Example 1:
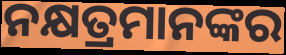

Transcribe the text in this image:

ନକ୍ଷତ୍ରମାନଙ୍କର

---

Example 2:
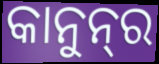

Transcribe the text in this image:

କାନୁନ୍‌ର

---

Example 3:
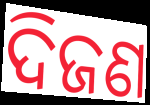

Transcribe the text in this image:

ଦିଜଣ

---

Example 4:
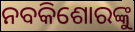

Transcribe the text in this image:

ନବକିଶୋରଙ୍କୁ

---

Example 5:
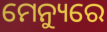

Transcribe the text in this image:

ମେନ୍ୟୁରେ